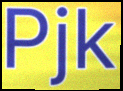
Pjk